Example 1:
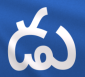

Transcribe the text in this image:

డు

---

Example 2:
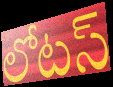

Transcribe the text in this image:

లోటస్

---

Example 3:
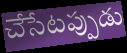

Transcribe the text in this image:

చేసేటప్పుడు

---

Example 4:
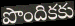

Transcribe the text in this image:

పొందికకు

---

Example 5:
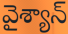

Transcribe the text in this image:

వైశ్యాన్